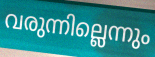
വരുന്നില്ലെന്നും